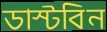
ডাস্টবিন